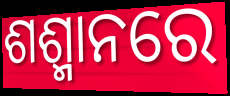
ଶଶ୍ମାନରେ